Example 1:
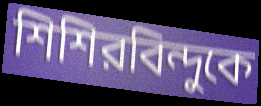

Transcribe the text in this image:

শিশিরবিন্দুকে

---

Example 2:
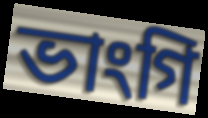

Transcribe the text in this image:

ভাংগি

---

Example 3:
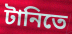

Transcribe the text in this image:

টানিতে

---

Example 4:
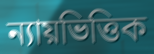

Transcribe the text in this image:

ন্যায়ভিত্তিক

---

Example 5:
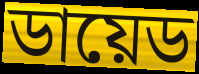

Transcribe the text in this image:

ডায়েড